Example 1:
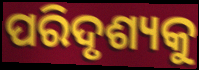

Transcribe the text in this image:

ପରିଦୃଶ୍ୟକୁ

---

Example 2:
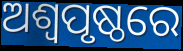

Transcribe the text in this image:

ଅଶ୍ଵପୃଷ୍ଠରେ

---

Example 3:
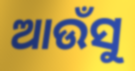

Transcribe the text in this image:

ଆଉଁସୁ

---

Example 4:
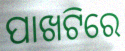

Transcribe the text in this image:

ପାଖଟିରେ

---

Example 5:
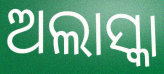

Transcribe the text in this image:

ଅଲାସ୍କା